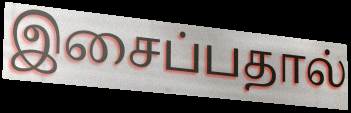
இசைப்பதால்